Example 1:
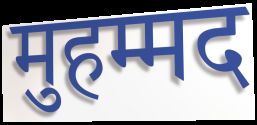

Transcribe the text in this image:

मुहम्मद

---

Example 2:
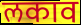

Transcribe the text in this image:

लकाव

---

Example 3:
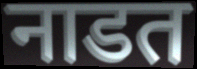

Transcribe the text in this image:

नाडत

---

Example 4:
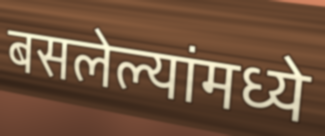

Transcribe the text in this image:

बसलेल्यांमध्ये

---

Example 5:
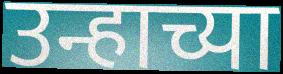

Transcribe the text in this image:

उन्हाच्या